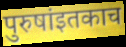
पुरुषांइतकाच